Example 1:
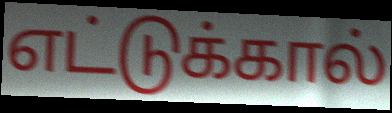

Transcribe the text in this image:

எட்டுக்கால்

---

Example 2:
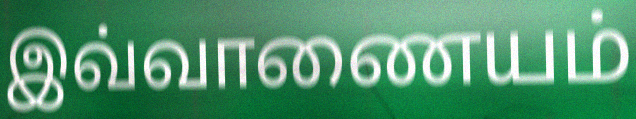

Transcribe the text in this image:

இவ்வாணையம்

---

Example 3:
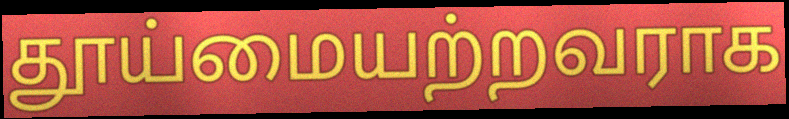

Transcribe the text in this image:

தூய்மையற்றவராக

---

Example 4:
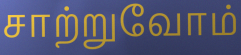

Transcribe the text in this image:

சாற்றுவோம்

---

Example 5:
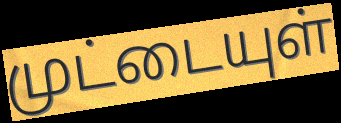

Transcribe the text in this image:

முட்டையுள்